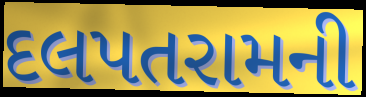
દલપતરામની